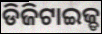
ଡିଜିଟାଇଜ୍ଡ